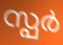
സ്പർ